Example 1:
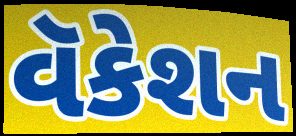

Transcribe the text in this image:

વૅકેશન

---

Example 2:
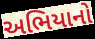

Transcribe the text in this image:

અભિયાનો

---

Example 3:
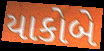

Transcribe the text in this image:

યાકોબે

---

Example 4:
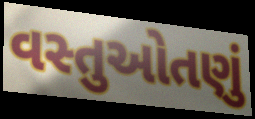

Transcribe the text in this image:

વસ્તુઓતણું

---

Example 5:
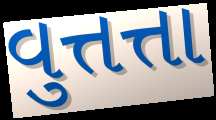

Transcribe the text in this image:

વુત્તત્તા